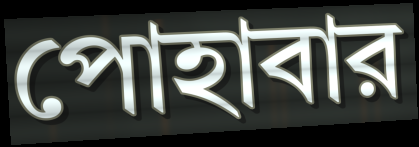
পোহাবার